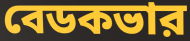
বেডকভার